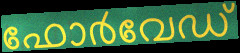
ഫോർവേഡ്